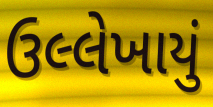
ઉલ્લેખાયું